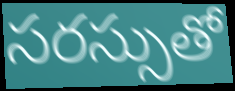
సరస్సుతో